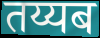
तय्यब